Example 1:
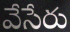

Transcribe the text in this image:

వేసేరు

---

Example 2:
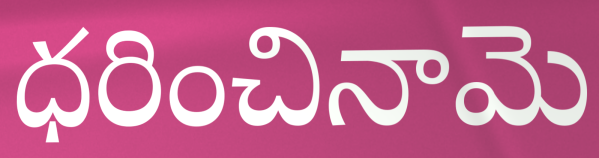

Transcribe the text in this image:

ధరించినామె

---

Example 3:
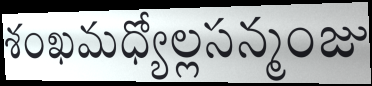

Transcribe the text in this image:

శంఖమధ్యోల్లసన్మంజు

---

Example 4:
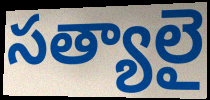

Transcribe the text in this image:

సత్యాలై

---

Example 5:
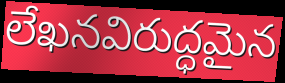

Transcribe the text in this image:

లేఖనవిరుద్ధమైన